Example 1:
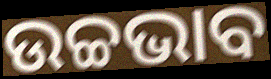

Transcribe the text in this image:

ଉଚ୍ଚଭାବ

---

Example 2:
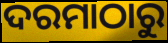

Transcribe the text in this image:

ଦରମାଠାରୁ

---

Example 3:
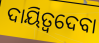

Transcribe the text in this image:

ଦାୟିତ୍ୱଦେବା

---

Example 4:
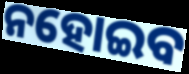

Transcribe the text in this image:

ନହୋଇବ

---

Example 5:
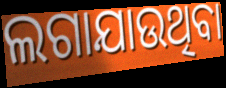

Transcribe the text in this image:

ଲଗାଯାଉଥିବା